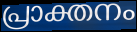
പ്രാക്തനം